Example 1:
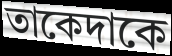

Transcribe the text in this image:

তাকেদাকে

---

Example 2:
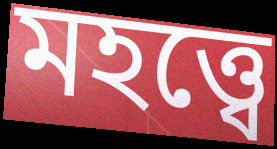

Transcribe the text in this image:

মহত্ত্বে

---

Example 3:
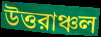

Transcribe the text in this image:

উত্তরাঞ্চল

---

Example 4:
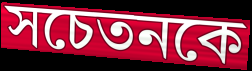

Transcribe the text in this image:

সচেতনকে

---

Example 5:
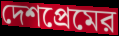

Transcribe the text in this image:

দেশপ্রেমের